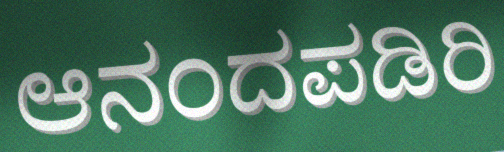
ಆನಂದಪಡಿರಿ